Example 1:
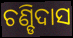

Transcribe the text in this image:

ଚଣ୍ଡିଦାସ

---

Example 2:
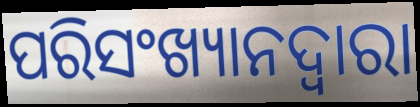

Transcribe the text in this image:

ପରିସଂଖ୍ୟାନଦ୍ଵାରା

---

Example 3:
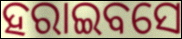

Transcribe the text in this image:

ହରାଇବସେ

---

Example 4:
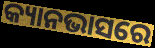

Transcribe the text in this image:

କ୍ୟାନଭାସରେ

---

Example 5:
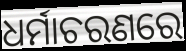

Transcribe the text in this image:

ଧର୍ମାଚରଣରେ